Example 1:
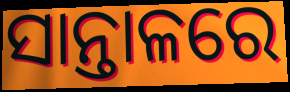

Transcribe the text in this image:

ସାନ୍ତାଳରେ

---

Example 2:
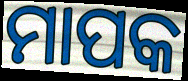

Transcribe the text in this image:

ମାପକ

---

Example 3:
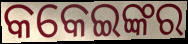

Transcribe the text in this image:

କକେଇଙ୍କର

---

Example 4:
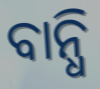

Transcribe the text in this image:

ବାନ୍ଧି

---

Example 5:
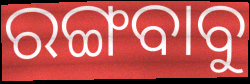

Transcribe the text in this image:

ରଙ୍ଗବାବୁ